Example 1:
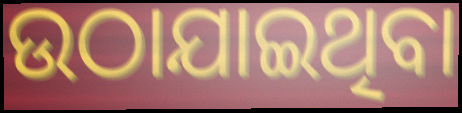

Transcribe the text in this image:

ଉଠାଯାଇଥିବା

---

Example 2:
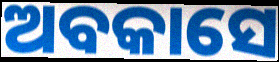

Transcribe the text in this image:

ଅବକାସେ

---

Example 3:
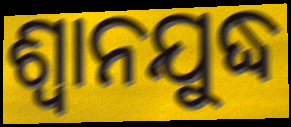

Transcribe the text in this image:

ଶ୍ଵାନଯୁଦ୍ଧ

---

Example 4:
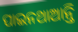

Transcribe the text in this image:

ପାଇନଥାଆନ୍ତି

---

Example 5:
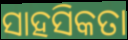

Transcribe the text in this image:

ସାହସିକତା